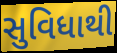
સુવિધાથી